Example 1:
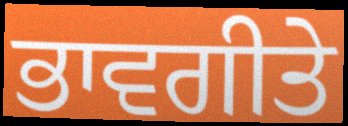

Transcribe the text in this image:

ਭਾਵਗੀਤੇ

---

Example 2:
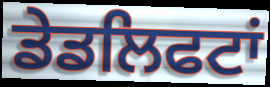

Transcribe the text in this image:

ਡੇਡਲਿਫਟਾਂ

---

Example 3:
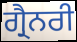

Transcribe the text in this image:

ਗ੍ਰੈਨਰੀ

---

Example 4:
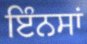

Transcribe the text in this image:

ਇੰਨਸਾਂ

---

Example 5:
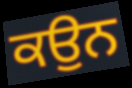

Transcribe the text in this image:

ਕਉਨ